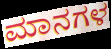
ಮಾನಗಳ